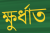
ক্ষুর্ধাত